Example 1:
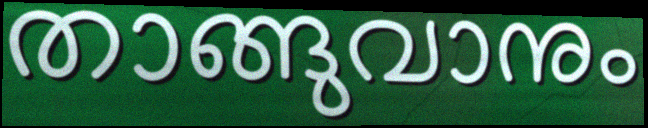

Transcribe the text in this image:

താങ്ങുവാനും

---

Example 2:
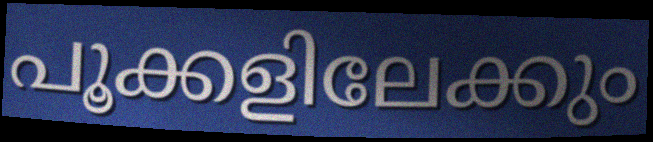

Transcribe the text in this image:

പൂക്കളിലേക്കും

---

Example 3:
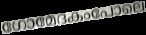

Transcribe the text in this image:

ഗോമേദകംപോലെ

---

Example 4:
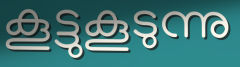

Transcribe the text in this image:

കൂട്ടുകൂടുന്നു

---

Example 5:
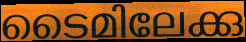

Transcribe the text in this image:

ടൈമിലേക്കു